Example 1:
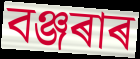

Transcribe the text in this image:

বঞ্জৰাৰ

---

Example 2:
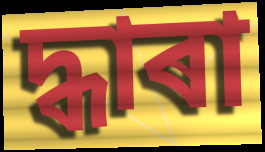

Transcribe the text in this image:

দ্ধাৰা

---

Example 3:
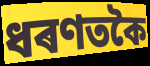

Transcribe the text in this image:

ধৰণতকৈ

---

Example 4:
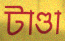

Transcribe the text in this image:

টাণ্ডা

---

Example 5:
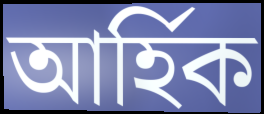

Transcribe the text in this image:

আৰ্হিক